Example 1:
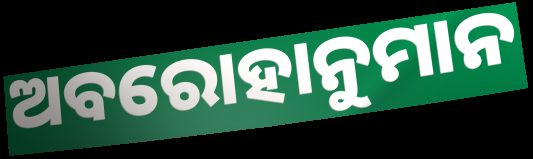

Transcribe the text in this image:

ଅବରୋହାନୁମାନ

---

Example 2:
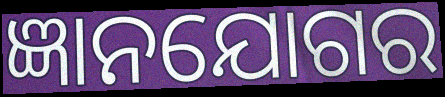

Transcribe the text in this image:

ଜ୍ଞାନଯୋଗର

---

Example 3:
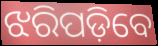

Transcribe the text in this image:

ଝରିପଡ଼ିବେ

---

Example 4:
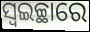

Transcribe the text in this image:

ସ୍ଵଇଚ୍ଛାରେ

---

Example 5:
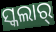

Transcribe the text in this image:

ସ୍କଲାର୍